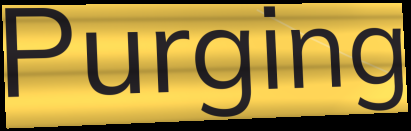
Purging